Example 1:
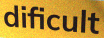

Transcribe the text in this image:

dificult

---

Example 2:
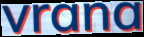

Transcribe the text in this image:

vrana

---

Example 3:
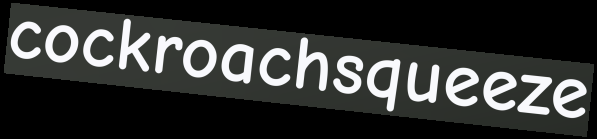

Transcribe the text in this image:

cockroachsqueeze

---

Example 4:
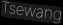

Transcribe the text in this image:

Tsewang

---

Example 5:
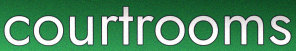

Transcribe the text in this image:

courtrooms